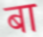
बा